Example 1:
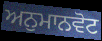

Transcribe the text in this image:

ਅਨੁਮਾਨਵੋਟ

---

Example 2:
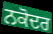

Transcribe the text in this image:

ਨਕੋਦਰ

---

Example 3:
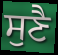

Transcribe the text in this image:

ਸੁਣੈ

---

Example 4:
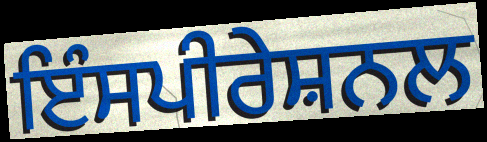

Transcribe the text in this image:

ਇੰਸਪੀਰੇਸ਼ਨਲ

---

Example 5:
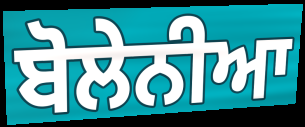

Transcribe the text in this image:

ਬੋਲੇਨੀਆ